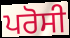
ਪਰੋਸੀ